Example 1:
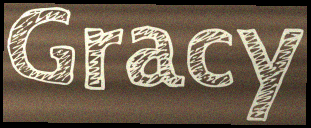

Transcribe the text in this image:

Gracy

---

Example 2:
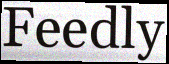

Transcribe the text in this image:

Feedly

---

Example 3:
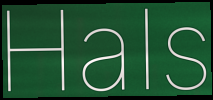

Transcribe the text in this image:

Hals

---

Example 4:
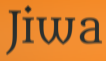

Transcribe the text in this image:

Jiwa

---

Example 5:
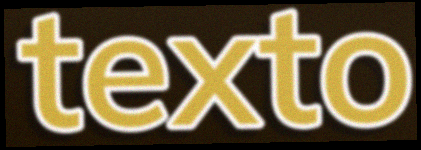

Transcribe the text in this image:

texto